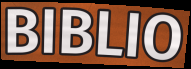
BIBLIO